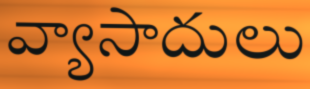
వ్యాసాదులు